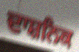
ਦਾਸ਼ਨਿਕ